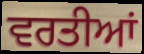
ਵਰਤੀਆਂ